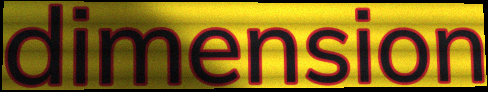
dimension